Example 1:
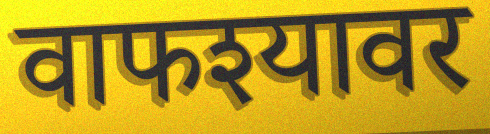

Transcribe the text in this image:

वाफश्यावर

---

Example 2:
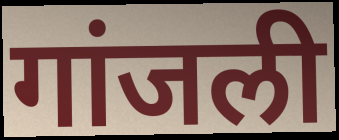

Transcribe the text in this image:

गांजली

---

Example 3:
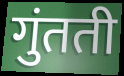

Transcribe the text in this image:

गुंतती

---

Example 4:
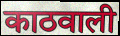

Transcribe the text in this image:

काठवाली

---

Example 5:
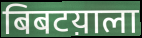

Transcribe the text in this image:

बिबटय़ाला